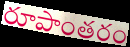
రూపాంతరం